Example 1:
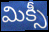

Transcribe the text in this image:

మిక్సీ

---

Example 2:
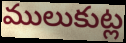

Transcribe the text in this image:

ములుకుట్ల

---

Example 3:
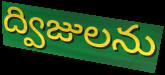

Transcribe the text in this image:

ద్విజులను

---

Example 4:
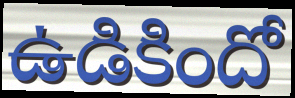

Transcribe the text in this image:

ఉడికిందో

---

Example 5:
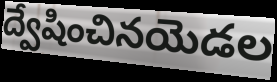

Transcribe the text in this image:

ద్వేషించినయెడల